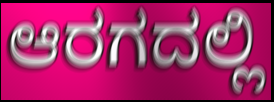
ಆರಗದಲ್ಲಿ